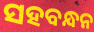
ସହବନ୍ଧନ